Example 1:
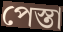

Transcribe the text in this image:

পেস্তা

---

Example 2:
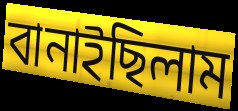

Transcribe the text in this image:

বানাইছিলাম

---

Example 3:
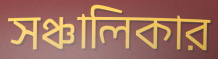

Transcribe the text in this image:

সঞ্চালিকার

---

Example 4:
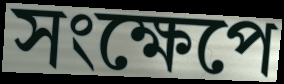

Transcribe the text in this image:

সংক্ষেপে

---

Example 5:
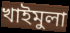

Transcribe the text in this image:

খাইমুলা